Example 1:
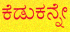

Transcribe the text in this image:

ಕೆಡುಕನ್ನೇ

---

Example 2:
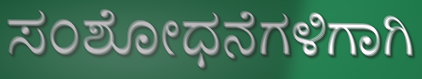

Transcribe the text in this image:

ಸಂಶೋಧನೆಗಳಿಗಾಗಿ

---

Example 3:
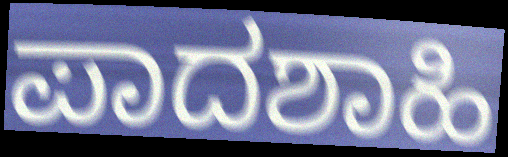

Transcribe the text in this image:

ಪಾದಶಾಹಿ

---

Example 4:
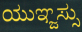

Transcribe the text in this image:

ಯುಞ್ಜಸ್ಸು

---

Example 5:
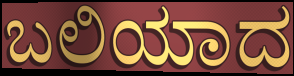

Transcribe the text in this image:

ಬಲಿಯಾದ